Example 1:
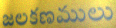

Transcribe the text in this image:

జలకణములు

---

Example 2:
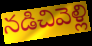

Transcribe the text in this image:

నడిచివెళ్లి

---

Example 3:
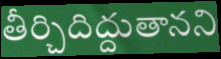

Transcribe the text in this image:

తీర్చిదిద్దుతానని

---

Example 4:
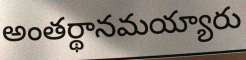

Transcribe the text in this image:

అంతర్థానమయ్యారు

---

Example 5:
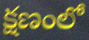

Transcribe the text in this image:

క్షణంలో